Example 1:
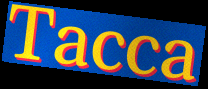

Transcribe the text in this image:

Tacca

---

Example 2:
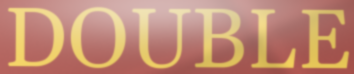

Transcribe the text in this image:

DOUBLE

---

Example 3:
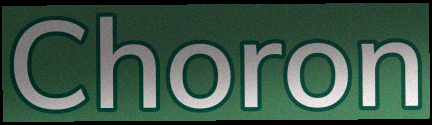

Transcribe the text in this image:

Choron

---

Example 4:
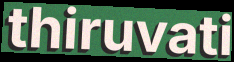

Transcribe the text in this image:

thiruvati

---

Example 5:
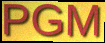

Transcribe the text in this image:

PGM